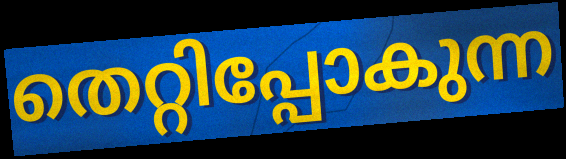
തെറ്റിപ്പോകുന്ന